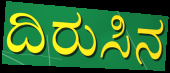
ದಿರುಸಿನ